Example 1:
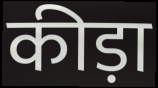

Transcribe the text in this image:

कीड़ा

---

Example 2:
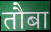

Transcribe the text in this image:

तौबा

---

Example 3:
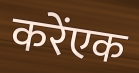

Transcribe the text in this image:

करेंएक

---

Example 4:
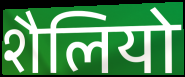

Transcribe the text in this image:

शैलियो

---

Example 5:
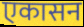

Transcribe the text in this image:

एकासन